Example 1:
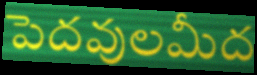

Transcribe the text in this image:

పెదవులమీద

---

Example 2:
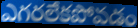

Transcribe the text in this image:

ఎగరలేకపోవడం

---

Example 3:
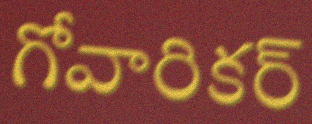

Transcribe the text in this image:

గోవారికర్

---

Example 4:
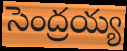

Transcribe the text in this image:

సెంద్రయ్య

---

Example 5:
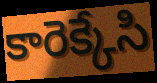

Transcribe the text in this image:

కారెక్కేసి